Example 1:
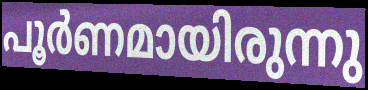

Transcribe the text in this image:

പൂർണമായിരുന്നു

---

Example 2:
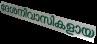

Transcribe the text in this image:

ദേശനിവാസികളായ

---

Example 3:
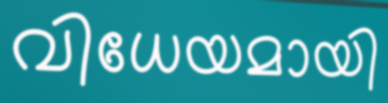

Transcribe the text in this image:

വിധേയമായി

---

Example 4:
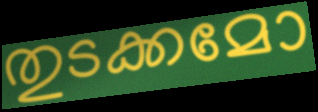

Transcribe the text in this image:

തുടക്കമോ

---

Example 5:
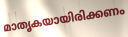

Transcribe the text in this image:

മാതൃകയായിരിക്കണം